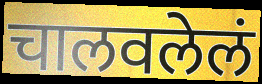
चालवलेलं